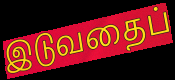
இடுவதைப்